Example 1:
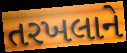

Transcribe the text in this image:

તરખલાને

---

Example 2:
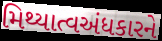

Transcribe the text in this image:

મિથ્યાત્વઅંધકારને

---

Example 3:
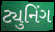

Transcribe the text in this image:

ટ્યુનિંગ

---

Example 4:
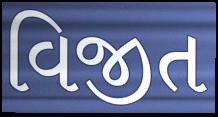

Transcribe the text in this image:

વિજીત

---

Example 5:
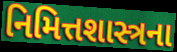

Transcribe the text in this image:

નિમિત્તશાસ્ત્રના